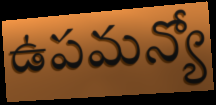
ఉపమన్యో